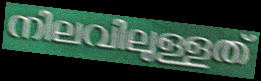
നിലവിലുള്ളത്